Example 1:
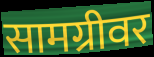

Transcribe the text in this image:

सामग्रीवर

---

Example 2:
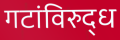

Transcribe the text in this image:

गटांविरुद्ध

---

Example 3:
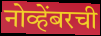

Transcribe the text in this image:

नोव्हेंबरची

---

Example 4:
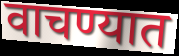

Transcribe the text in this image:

वाचण्यात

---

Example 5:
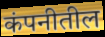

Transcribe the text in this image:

कंपनीतील